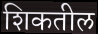
शिकतील